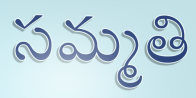
సమ్మతి